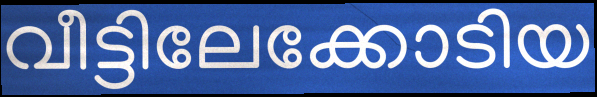
വീട്ടിലേക്കോടിയ